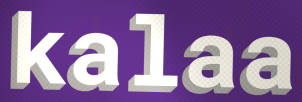
kalaa